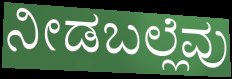
ನೀಡಬಲ್ಲೆವು